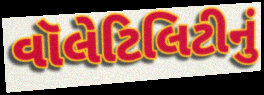
વૉલેટિલિટીનું